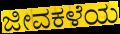
ಜೀವಕಳೆಯ